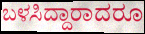
ಬಳಸಿದ್ದಾರಾದರೂ